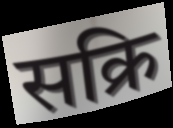
सक्रि